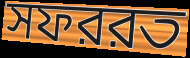
সফররত